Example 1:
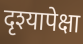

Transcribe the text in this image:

दृश्यापेक्षा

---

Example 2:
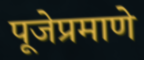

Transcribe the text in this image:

पूजेप्रमाणे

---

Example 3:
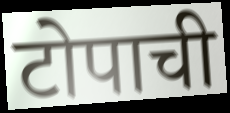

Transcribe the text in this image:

टोपाची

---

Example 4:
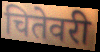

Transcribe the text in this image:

चितेवरी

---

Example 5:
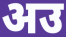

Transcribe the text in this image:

अउ